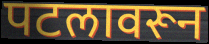
पटलावरून